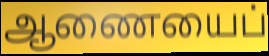
ஆணையைப்